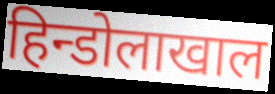
हिन्डोलाखाल